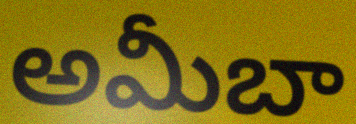
అమీబా